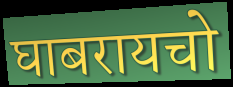
घाबरायचो